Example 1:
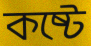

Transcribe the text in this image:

কষ্টে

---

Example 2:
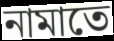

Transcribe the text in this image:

নামাতে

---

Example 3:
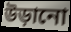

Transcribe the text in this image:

উড়ানো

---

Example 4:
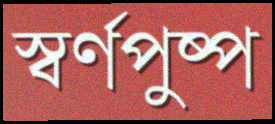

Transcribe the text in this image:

স্বর্ণপুষ্প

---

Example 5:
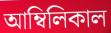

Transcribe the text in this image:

আম্বিলিকাল